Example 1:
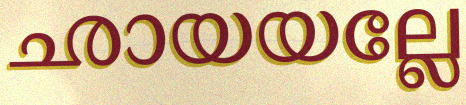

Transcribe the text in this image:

ഛായയല്ലേ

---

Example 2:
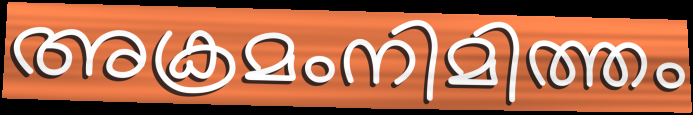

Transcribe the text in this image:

അക്രമംനിമിത്തം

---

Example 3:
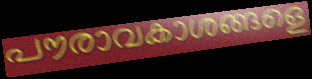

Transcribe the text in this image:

പൗരാവകാശങ്ങളെ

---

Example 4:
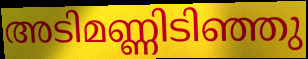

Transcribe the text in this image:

അടിമണ്ണിടിഞ്ഞു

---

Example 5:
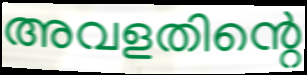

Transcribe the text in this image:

അവളതിന്റെ